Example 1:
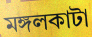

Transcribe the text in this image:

মঙ্গলকাটা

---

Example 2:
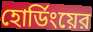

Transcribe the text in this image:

হোর্ডিংয়ের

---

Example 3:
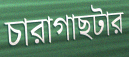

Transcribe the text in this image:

চারাগাছটার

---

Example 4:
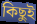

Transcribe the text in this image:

কিছুই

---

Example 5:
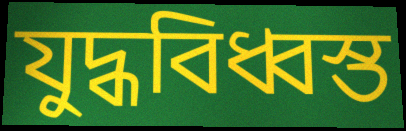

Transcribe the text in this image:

যুদ্ধবিধ্বস্ত